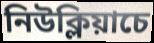
নিউক্লিয়াচে